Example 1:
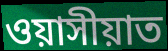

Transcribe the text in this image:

ওয়াসীয়াত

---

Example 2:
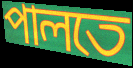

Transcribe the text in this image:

পালতে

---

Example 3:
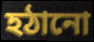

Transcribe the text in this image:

হঠানো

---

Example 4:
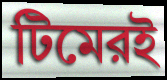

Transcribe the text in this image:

টিমেরই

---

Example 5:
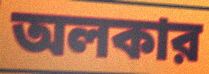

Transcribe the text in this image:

অলকার